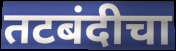
तटबंदीचा